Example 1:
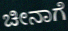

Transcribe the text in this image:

ಚೀನಾಗೆ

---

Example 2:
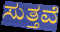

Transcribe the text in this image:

ಸುತ್ತವೆ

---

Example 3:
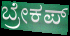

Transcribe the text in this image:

ಬ್ರೇಕಪ್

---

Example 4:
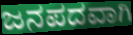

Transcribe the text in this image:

ಜನಪದವಾಗಿ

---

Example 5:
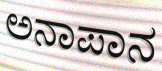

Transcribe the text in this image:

ಅನಾಪಾನ